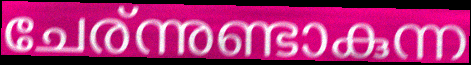
ചേര്ന്നുണ്ടാകുന്ന